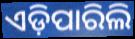
ଏଡ଼ିପାରିଲି